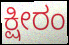
ಕ್ಷೀರಂ